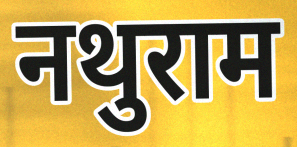
नथुराम